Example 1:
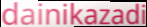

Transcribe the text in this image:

dainikazadi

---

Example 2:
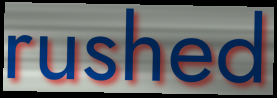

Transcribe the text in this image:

rushed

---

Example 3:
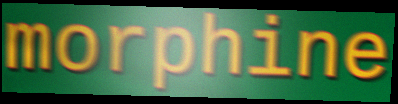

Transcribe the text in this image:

morphine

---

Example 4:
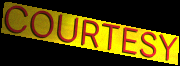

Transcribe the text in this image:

COURTESY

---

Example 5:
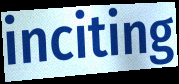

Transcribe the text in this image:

inciting